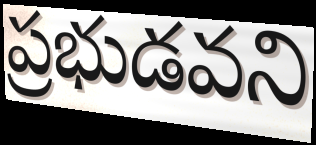
ప్రభుడవని